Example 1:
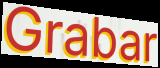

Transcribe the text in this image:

Grabar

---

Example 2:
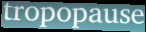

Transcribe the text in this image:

tropopause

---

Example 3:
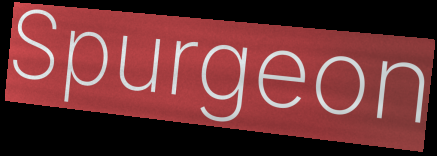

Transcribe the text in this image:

Spurgeon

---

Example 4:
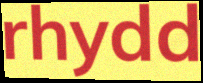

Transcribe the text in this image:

rhydd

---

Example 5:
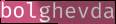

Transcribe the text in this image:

bolghevda